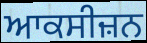
ਆਕਸੀਜ਼ਨ